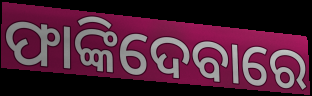
ଫାଙ୍କିଦେବାରେ